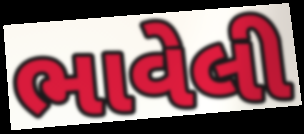
ભાવેલી